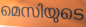
മെസിയുടെ